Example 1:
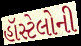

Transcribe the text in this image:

હૉસ્ટેલોની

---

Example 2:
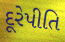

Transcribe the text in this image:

દૂરેપીતિ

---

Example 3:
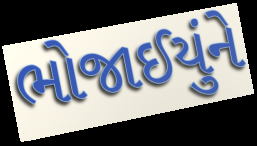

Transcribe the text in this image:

ભોજાઈયુંને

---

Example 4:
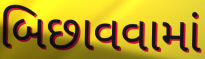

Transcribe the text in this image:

બિછાવવામાં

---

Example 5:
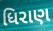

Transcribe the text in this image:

ધિરાણ